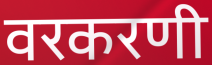
वरकरणी